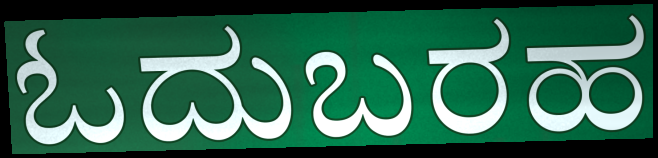
ಓದುಬರಹ